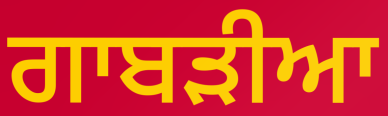
ਗਾਬੜੀਆ